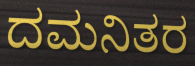
ದಮನಿತರ